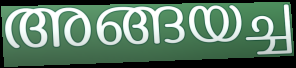
അങ്ങയച്ച